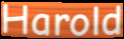
Harold